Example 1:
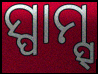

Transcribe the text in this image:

ସ୍ପାମ୍ସ୍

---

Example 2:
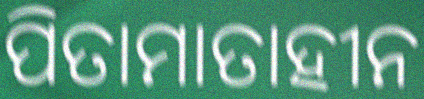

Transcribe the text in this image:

ପିତାମାତାହୀନ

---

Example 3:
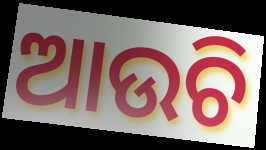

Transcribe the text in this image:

ଆଉଚି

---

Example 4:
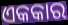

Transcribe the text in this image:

ଏକକାର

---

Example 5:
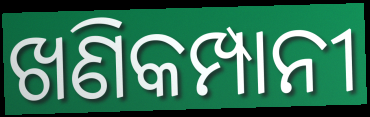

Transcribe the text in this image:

ଖଣିକମ୍ପାନୀ